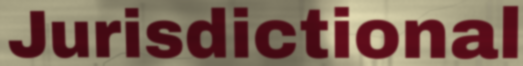
Jurisdictional